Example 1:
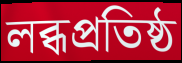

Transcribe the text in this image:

লব্ধপ্রতিষ্ঠ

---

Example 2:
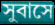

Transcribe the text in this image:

সুবাসে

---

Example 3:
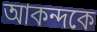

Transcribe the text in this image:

আকন্দকে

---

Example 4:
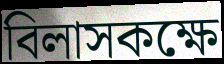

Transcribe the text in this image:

বিলাসকক্ষে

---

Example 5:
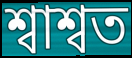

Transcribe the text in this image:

শ্বাশ্বত